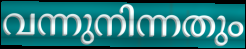
വന്നുനിന്നതും